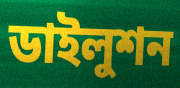
ডাইলুশন